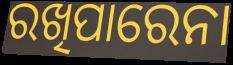
ରଖିପାରେନା